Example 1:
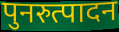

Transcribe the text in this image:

पुनरुत्पादन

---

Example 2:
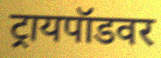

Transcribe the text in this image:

ट्रायपॉडवर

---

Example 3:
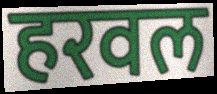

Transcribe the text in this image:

हरवल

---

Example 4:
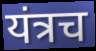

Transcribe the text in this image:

यंत्रच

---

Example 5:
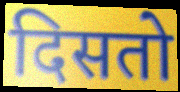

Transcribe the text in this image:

दिसतो